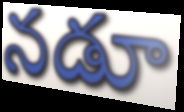
నడూ